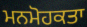
ਮਨਮੋਹਕਤਾ